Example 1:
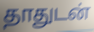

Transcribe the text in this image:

தாதுடன்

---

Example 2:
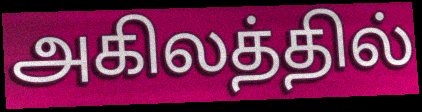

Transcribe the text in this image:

அகிலத்தில்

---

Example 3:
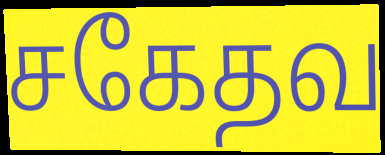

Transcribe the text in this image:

சகேதவ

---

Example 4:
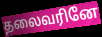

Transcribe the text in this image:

தலைவரினே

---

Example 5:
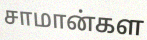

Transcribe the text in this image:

சாமான்கள